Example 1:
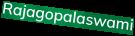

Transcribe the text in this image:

Rajagopalaswami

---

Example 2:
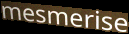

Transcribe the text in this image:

mesmerise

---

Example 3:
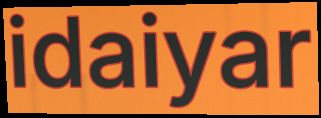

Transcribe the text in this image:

idaiyar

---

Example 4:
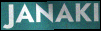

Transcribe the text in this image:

JANAKI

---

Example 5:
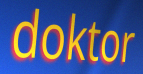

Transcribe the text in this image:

doktor